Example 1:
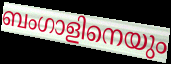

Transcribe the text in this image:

ബംഗാളിനെയും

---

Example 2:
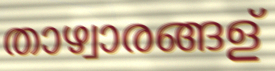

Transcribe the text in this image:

താഴ്വാരങ്ങള്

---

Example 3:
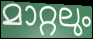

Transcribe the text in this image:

മാറ്റലും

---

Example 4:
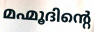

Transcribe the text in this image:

മഹ്മൂദിന്റെ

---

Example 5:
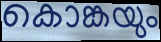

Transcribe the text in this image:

കൊങ്കയും